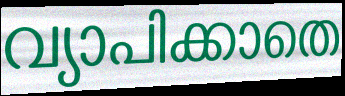
വ്യാപിക്കാതെ